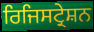
ਰਿਜਿਸਟ੍ਰੇਸ਼ਨ